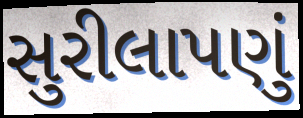
સુરીલાપણું